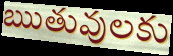
ఋతువులకు